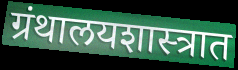
ग्रंथालयशास्त्रात